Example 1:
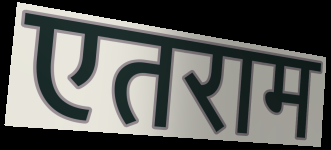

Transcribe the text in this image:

एतराम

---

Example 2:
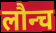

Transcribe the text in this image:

लौन्च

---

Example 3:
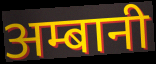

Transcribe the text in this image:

अम्‍बानी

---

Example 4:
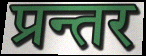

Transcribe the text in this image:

प्रन्तर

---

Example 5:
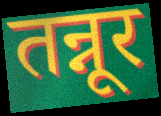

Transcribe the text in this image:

तन्नूर